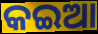
କଇଆ